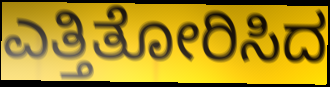
ಎತ್ತಿತೋರಿಸಿದ